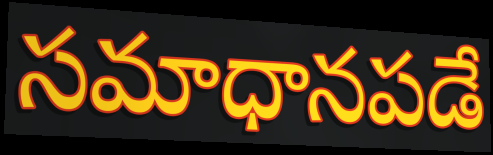
సమాధానపడే